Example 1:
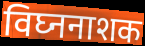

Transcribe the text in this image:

विघ्ननाशक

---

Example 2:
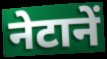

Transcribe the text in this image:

नेटानें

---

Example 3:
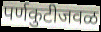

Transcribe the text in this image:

पर्णकुटीजवळ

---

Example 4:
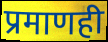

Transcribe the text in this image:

प्रमाणही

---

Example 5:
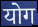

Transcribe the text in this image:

योग